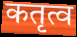
कतृत्व